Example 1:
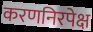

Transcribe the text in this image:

करणनिरपेक्ष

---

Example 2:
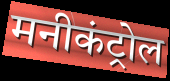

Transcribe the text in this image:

मनीकंट्रोल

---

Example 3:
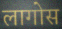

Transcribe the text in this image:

लागोस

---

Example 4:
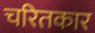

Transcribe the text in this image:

चरितकार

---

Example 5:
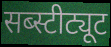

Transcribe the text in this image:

सब्स्टीट्यूट